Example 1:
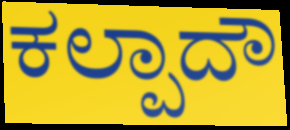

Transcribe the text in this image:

ಕಲ್ಪಾದೌ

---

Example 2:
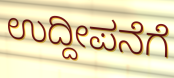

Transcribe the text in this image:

ಉದ್ದೀಪನೆಗೆ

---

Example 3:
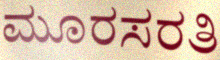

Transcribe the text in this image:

ಮೂರಸರತಿ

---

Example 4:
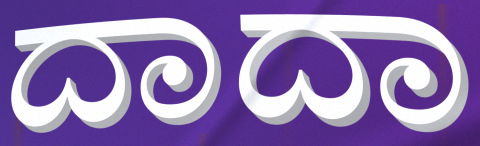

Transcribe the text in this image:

ದಾದಾ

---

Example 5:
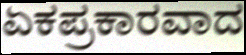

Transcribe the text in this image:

ಏಕಪ್ರಕಾರವಾದ